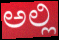
ಅಲ್ಲಿ